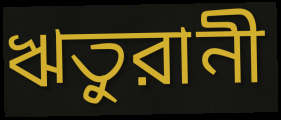
ঋতুরানী